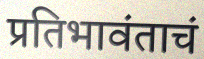
प्रतिभावंताचं